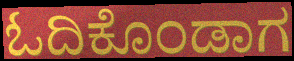
ಓದಿಕೊಂಡಾಗ